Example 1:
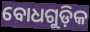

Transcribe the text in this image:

ବୋଧଗୁଡ଼ିକ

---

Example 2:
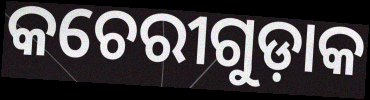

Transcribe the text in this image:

କଚେରୀଗୁଡ଼ାକ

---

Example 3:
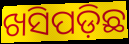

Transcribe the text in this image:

ଖସିପଡ଼ିଛ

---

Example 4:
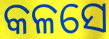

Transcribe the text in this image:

କଳସେ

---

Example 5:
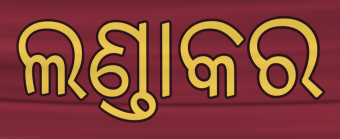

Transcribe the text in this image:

ଲଣ୍ଡାକର